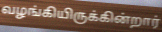
வழங்கியிருக்கின்றார்